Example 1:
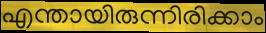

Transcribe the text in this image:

എന്തായിരുന്നിരിക്കാം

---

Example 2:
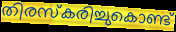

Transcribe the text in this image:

തിരസ്കരിച്ചുകൊണ്ട്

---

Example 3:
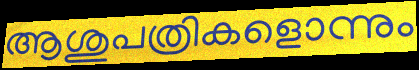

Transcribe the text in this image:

ആശുപത്രികളൊന്നും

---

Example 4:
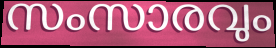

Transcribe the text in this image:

സംസാരവും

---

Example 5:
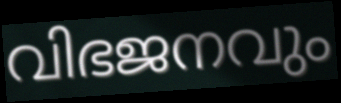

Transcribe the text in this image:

വിഭജനവും